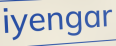
iyengar